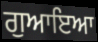
ਗੁਆਇਆ